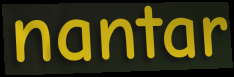
nantar